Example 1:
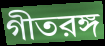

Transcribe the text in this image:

গীতরঙ্গ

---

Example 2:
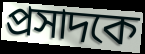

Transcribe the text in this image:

প্রসাদকে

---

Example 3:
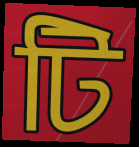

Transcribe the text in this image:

টি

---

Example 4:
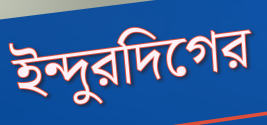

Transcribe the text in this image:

ইন্দুরদিগের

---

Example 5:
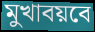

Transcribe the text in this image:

মুখাবয়বে